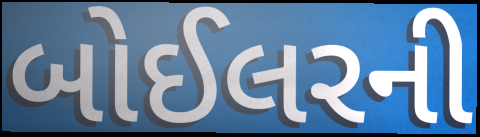
બોઈલરની